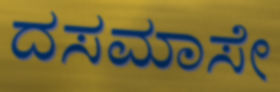
ದಸಮಾಸೇ